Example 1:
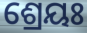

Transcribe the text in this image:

ଶ୍ରେୟଃ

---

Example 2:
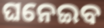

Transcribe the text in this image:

ଘନେଇବ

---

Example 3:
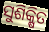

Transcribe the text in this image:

ସୁଶିକ୍ଷିତ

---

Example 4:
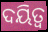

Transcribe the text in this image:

ଦୟିତ୍ୱ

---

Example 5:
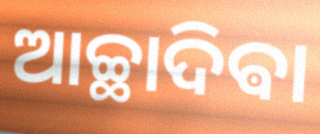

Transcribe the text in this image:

ଆଚ୍ଛାଦିଵା